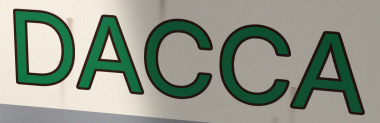
DACCA